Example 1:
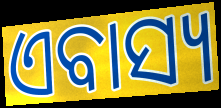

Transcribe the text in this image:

ଏବାସ୍ୟ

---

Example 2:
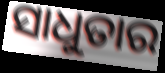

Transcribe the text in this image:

ସାଧୁତାର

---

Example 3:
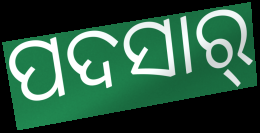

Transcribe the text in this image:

ପଦସାର୍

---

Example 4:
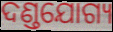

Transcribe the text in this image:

ଦଣ୍ଡଯୋଗ୍ୟ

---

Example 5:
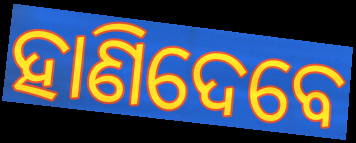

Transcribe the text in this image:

ହାଣିଦେବେ